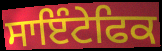
ਸਾਇੰਟੇਫਿਕ